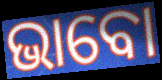
ଭାବୋ